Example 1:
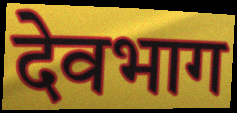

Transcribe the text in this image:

देवभाग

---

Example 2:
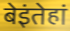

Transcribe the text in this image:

बेइंतेहां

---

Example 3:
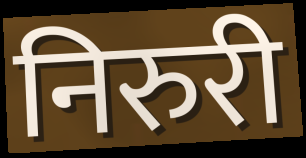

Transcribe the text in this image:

निरुरी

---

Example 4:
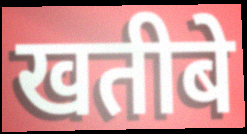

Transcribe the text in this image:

खतीबे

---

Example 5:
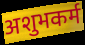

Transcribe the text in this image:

अशुभकर्म